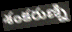
శంకరుణ్ని